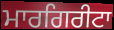
ਮਾਰਗਿਰੀਟਾ